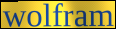
wolfram